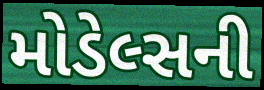
મોડેલ્સની